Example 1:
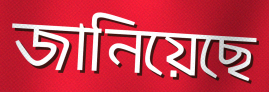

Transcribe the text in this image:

জানিয়েছে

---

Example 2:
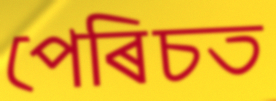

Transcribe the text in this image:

পেৰিচত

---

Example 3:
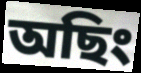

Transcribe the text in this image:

অছিং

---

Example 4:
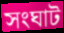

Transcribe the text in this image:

সংঘাট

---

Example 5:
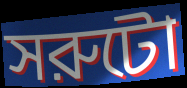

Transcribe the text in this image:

সৰুটো